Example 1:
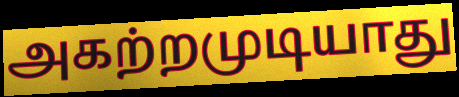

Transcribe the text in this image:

அகற்றமுடியாது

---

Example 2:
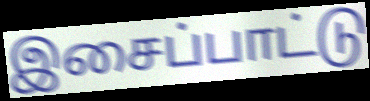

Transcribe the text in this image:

இசைப்பாட்டு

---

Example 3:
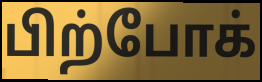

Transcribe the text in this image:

பிற்போக்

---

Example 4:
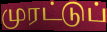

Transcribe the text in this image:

முரட்டுப்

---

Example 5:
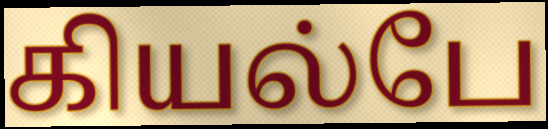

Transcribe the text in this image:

கியல்பே